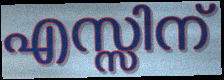
എസ്സിന്